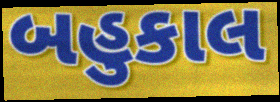
બહુકાલ